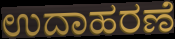
ಉದಾಹರಣೆ